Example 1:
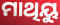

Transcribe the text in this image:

ମାଥିୟୁ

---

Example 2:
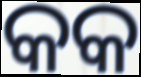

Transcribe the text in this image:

କକ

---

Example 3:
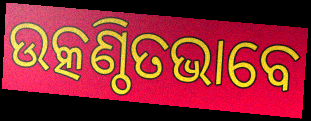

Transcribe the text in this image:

ଉତ୍କଣ୍ଠିତଭାବେ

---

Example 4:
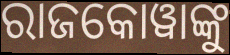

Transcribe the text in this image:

ରାଜକୋୱାଙ୍କୁ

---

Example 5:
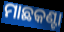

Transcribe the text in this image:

ମାଛକଣ୍ଟା